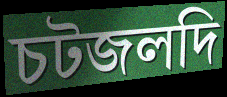
চটজলদি